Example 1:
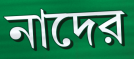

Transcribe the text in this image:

নাদের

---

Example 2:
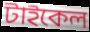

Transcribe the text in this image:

টাইকেল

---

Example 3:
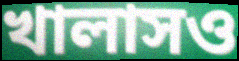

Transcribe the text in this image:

খালাসও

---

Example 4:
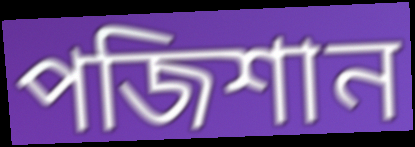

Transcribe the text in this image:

পজিশান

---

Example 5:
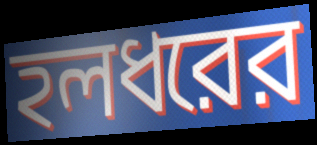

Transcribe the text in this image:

হলধরের